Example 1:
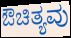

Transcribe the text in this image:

ಔಚಿತ್ಯವು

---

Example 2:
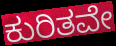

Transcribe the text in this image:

ಕುರಿತವೇ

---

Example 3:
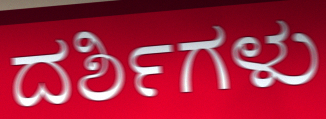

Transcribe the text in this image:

ದರ್ಶಿಗಳು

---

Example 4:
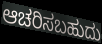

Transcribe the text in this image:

ಆಚರಿಸಬಹುದು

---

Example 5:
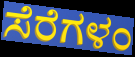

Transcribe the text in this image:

ಸೆರೆಗಳಂ